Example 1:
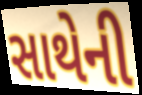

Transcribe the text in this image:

સાથેની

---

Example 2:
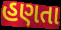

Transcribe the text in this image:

હણતા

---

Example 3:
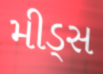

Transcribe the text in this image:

મીડ્સ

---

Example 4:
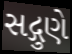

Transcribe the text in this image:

સદ્ગુણે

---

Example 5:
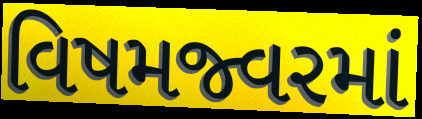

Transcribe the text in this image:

વિષમજ્વરમાં